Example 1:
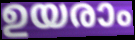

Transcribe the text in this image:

ഉയരാം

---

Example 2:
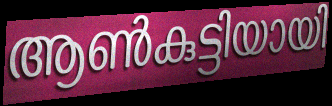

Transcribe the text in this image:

ആൺകുട്ടിയായി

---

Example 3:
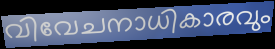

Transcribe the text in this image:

വിവേചനാധികാരവും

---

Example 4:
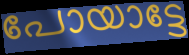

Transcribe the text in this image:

പോയാട്ടേ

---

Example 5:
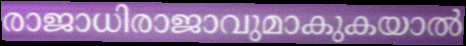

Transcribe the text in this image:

രാജാധിരാജാവുമാകുകയാൽ